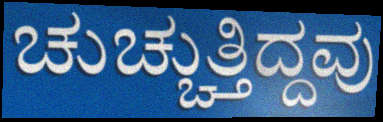
ಚುಚ್ಚುತ್ತಿದ್ದವು